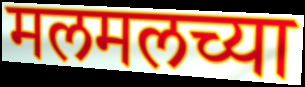
मलमलच्या